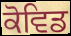
ਕੋਵਿਡ